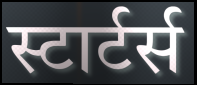
स्टार्टर्स